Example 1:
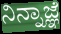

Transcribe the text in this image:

ನಿನ್ನಾಜ್ಞೆ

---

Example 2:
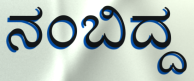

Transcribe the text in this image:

ನಂಬಿದ್ದ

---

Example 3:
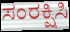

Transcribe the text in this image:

ಸಂರಕ್ಷಿಸಿ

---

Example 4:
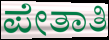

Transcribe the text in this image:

ಪೇತಾತಿ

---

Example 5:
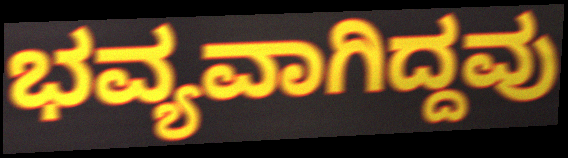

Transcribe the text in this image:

ಭವ್ಯವಾಗಿದ್ದವು